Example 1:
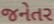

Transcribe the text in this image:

જનેતર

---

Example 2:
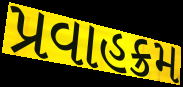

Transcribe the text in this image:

પ્રવાહક્રમ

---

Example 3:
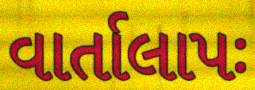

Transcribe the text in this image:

વાર્તાલાપઃ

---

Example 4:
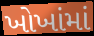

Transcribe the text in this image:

ખોખાંમાં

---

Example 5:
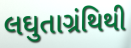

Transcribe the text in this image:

લઘુતાગ્રંથિથી